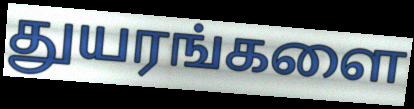
துயரங்களை